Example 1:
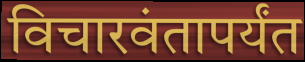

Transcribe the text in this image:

विचारवंतापर्यंत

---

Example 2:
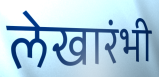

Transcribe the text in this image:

लेखारंभी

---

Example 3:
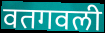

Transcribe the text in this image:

वतगवली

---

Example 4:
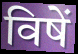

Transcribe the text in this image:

विषें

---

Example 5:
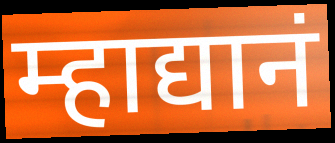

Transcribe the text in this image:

म्हाद्यानं